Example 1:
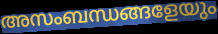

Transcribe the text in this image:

അസംബന്ധങ്ങളേയും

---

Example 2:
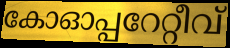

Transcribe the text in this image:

കോഓപ്പറേറ്റീവ്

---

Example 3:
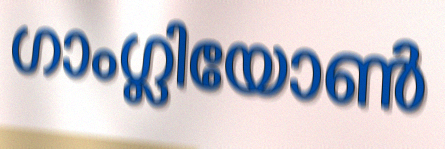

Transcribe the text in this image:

ഗാംഗ്ലിയോൺ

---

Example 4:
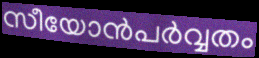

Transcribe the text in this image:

സീയോൻപർവ്വതം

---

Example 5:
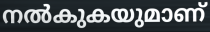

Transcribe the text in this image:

നൽകുകയുമാണ്